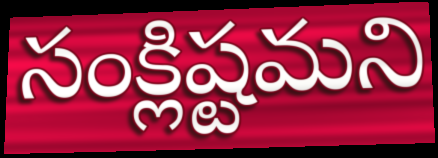
సంక్లిష్టమని